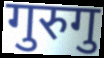
गुरुगु